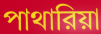
পাথারিয়া